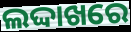
ଲଦ୍ଦାଖରେ